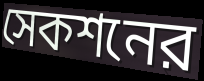
সেকশনের